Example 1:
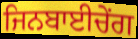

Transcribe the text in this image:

ਜਿਨਬਾਈਚੇਂਗ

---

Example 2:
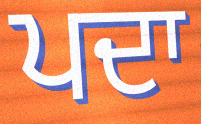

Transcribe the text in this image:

ਪਦਾ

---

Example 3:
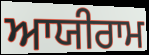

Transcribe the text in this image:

ਆਯੀਰਾਮ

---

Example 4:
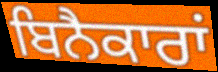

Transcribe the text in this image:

ਬਿਨੈਕਾਰਾਂ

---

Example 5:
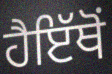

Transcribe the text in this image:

ਹੈਇੱਥੋਂ